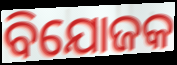
ବିଯୋଜକ